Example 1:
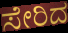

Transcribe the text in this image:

ಸೇರಿದ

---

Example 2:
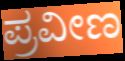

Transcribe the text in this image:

ಪ್ರವೀಣ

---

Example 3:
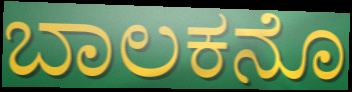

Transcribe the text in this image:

ಬಾಲಕನೊ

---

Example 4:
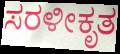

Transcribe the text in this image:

ಸರಳೀಕೃತ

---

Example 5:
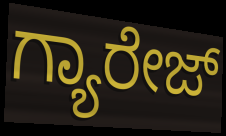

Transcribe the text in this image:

ಗ್ಯಾರೇಜ್